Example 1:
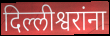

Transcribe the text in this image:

दिल्लीश्वरांना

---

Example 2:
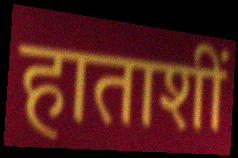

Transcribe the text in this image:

हाताशीं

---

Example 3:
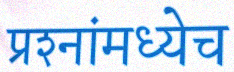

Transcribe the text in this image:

प्रश्नांमध्येच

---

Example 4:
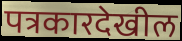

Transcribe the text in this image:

पत्रकारदेखील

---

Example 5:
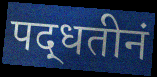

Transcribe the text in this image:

पद्धतीनं